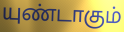
யுண்டாகும்